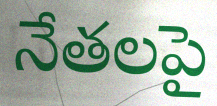
నేతలపై